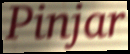
Pinjar